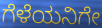
ಗೆಳೆಯನಿಗೇ